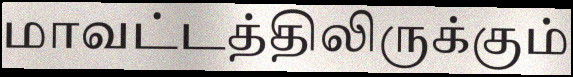
மாவட்டத்திலிருக்கும்